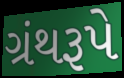
ગ્રંથરૂપે